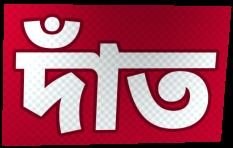
দাঁত